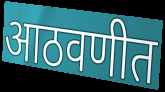
आठवणीत